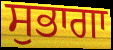
ਸੁਭਾਗਾ